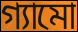
গ্যামো